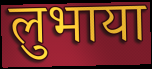
लुभाया